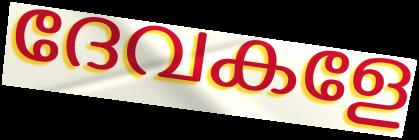
ദേവകളേ